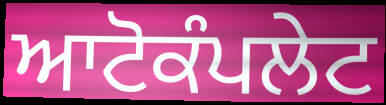
ਆਟੋਕੰਪਲੇਟ